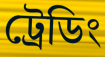
ট্রেডিং